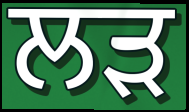
ਲੜ